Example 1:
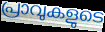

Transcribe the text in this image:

പ്രാവുകളുടെ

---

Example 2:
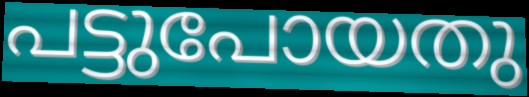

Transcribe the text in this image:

പട്ടുപോയതു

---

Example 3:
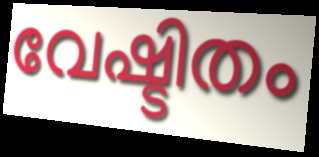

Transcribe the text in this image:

വേഷ്ടിതം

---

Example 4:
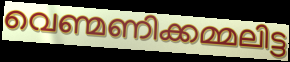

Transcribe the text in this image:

വെണ്മണിക്കമ്മലിട്ട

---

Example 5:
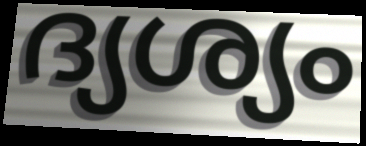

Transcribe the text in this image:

ദ്യശ്യം